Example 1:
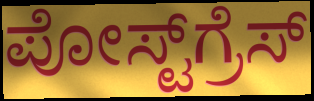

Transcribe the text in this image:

ಪೋಸ್ಟ್‌ಗ್ರೆಸ್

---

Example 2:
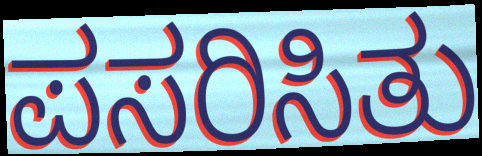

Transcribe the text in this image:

ಪಸರಿಸಿತು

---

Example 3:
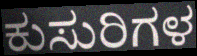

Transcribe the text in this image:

ಕುಸುರಿಗಳ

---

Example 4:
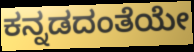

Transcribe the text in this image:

ಕನ್ನಡದಂತೆಯೇ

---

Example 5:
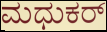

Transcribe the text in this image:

ಮಧುಕರ್